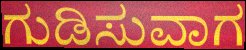
ಗುಡಿಸುವಾಗ